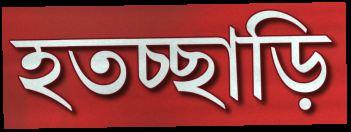
হতচ্ছাড়ি